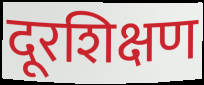
दूरशिक्षण